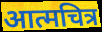
आत्मचित्र